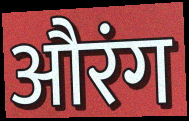
औरंग